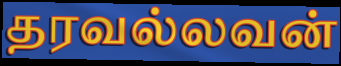
தரவல்லவன்